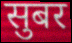
सुबर